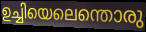
ഉച്ചിയെലെന്തൊരു